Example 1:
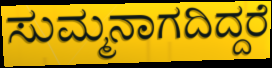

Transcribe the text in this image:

ಸುಮ್ಮನಾಗದಿದ್ದರೆ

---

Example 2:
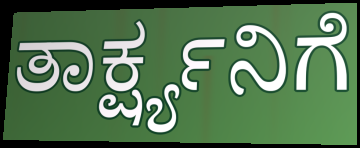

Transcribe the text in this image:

ತಾರ್ಕ್ಷ್ಯನಿಗೆ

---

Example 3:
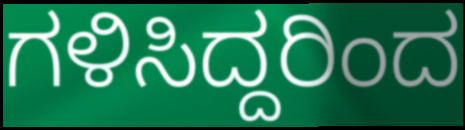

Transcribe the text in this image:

ಗಳಿಸಿದ್ದರಿಂದ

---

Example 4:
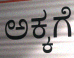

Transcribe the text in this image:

ಅಕ್ಕಗೆ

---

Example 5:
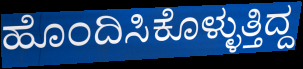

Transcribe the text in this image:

ಹೊಂದಿಸಿಕೊಳ್ಳುತ್ತಿದ್ದ